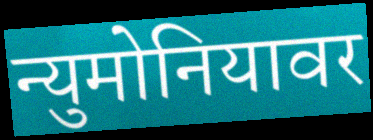
न्युमोनियावर